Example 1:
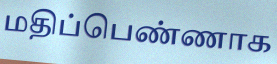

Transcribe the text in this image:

மதிப்பெண்ணாக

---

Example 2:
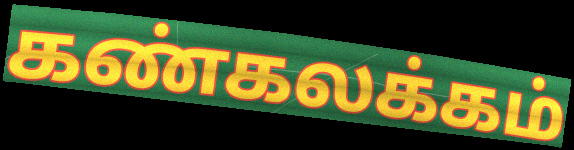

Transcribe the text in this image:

கண்கலக்கம்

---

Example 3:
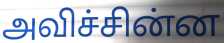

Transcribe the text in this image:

அவிச்சின்ன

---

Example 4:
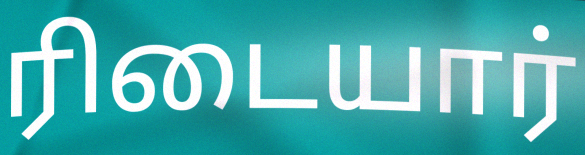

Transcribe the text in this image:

ரிடையார்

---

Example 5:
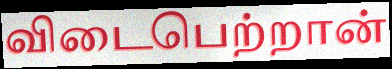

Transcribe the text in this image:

விடைபெற்றான்